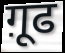
ग़ूढ